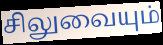
சிலுவையும்